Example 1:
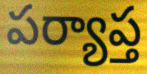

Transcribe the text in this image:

పర్యాప్త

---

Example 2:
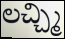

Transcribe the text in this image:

లచ్చ్మి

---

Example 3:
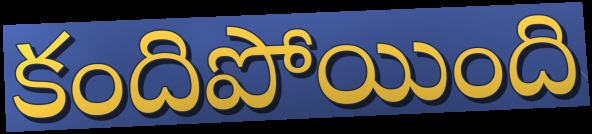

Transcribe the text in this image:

కందిపోయింది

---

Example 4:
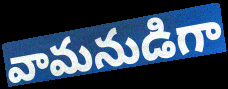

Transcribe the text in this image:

వామనుడిగా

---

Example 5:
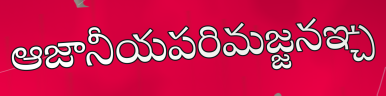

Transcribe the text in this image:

ఆజానీయపరిమజ్జనఞ్చ